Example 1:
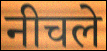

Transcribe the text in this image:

नीचले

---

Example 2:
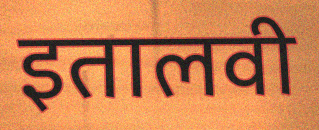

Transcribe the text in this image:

इतालवी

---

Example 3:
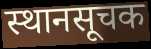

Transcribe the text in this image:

स्थानसूचक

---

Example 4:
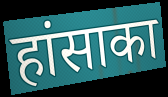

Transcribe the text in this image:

हांसाका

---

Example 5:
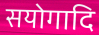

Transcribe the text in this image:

सयोगादि